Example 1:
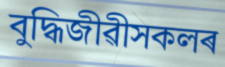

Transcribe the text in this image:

বুদ্ধিজীৱীসকলৰ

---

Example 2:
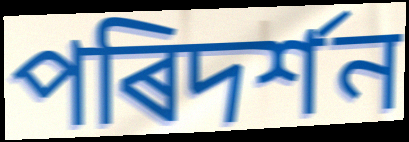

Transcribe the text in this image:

পৰিদৰ্শন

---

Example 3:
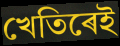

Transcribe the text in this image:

খেতিৰেই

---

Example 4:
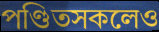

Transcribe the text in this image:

পণ্ডিতসকলেও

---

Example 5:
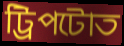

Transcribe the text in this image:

ট্ৰিপটোত